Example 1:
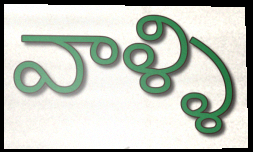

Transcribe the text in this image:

వాళ్ళి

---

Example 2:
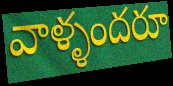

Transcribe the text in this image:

వాళ్ళందరూ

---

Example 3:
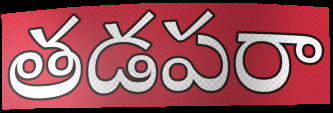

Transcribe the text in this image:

తడపరా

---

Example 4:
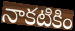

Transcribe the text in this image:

నాకటికిం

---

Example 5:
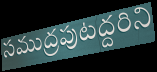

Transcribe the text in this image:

సముద్రపుటద్దరిని